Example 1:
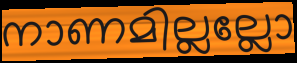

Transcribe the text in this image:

നാണമില്ലല്ലോ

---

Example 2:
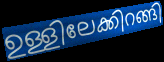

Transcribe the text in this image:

ഉള്ളിലേക്കിറങ്ങി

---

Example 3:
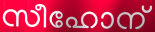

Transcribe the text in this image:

സീഹോന്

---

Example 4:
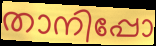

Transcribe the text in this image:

താനിപ്പോ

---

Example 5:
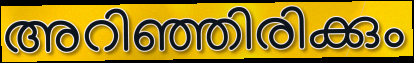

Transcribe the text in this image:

അറിഞ്ഞിരിക്കും